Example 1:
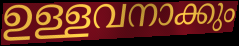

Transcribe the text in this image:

ഉള്ളവനാക്കും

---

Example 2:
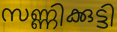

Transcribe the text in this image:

സണ്ണിക്കുട്ടി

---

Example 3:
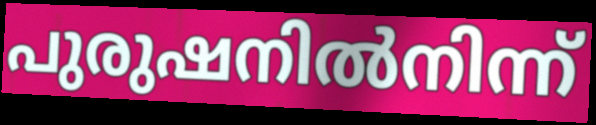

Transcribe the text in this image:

പുരുഷനിൽനിന്ന്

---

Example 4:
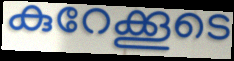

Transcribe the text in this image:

കുറേക്കൂടെ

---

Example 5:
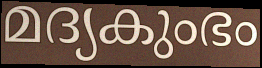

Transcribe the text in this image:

മദ്യകുംഭം